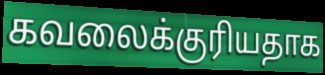
கவலைக்குரியதாக